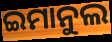
ଇମାନୁଲ